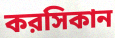
করসিকান